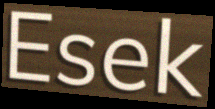
Esek